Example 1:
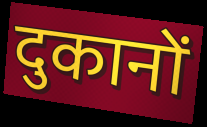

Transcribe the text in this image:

दुकानों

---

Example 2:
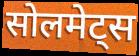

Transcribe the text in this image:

सोलमेट्स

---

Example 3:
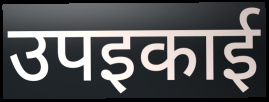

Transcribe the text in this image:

उपइकाई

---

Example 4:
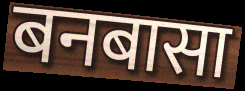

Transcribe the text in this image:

बनबासा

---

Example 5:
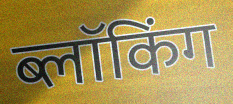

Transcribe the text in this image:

ब्लॉकिंग